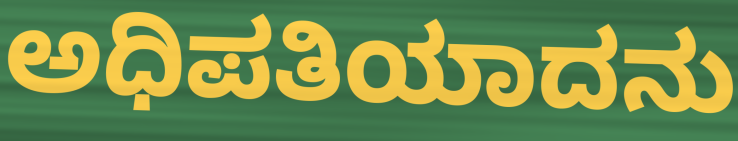
ಅಧಿಪತಿಯಾದನು